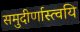
समुदीर्णास्त्वयि